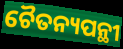
ଚୈତନ୍ୟପନ୍ଥୀ